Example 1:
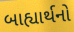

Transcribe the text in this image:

બાહ્યાર્થનો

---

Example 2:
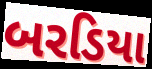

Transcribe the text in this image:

બરડિયા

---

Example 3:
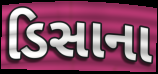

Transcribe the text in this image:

ડિસાના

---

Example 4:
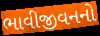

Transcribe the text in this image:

ભાવીજીવનનો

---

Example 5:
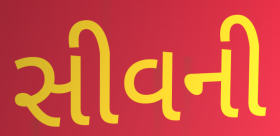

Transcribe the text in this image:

સીવની